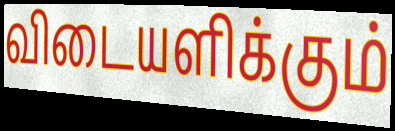
விடையளிக்கும்